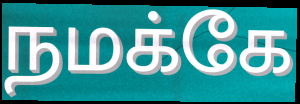
நமக்கே